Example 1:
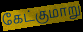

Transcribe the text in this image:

கேட்குமாறு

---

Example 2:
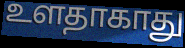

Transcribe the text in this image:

உளதாகாது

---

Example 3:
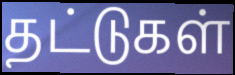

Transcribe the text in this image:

தட்டுகள்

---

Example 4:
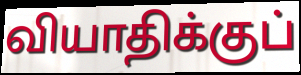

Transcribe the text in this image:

வியாதிக்குப்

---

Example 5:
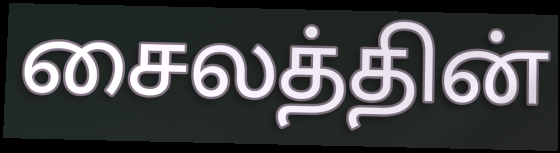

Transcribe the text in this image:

சைலத்தின்